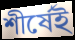
শীর্ষেই